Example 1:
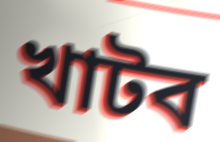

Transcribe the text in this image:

খাটব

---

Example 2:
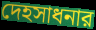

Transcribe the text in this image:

দেহসাধনার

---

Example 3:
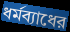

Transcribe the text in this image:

ধর্মব্যাধের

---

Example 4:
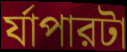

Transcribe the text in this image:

র্যাপারটা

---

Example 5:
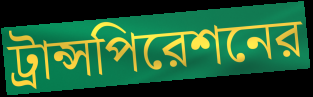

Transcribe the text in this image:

ট্রান্সপিরেশনের